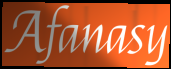
Afanasy